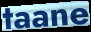
taane